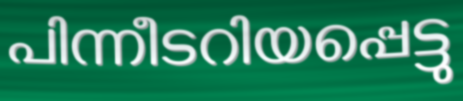
പിന്നീടറിയപ്പെട്ടു